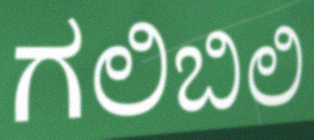
ಗಲಿಬಿಲಿ